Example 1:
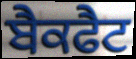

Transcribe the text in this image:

ਬੈਕਫੈਟ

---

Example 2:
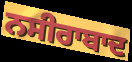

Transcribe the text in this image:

ਨਸੀਰਾਬਾਦ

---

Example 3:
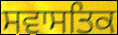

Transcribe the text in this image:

ਸਵਾਸਤਿਕ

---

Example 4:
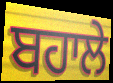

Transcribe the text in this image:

ਬਹਾਲੇ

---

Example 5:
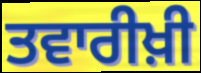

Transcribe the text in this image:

ਤਵਾਰੀਖ਼ੀ